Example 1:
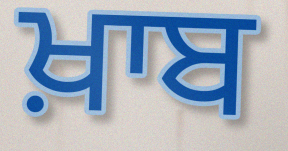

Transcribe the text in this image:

ਖ਼ਾਬ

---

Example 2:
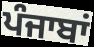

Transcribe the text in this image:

ਪੰਜਾਬਾਂ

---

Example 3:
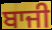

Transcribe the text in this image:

ਬਾਜੀ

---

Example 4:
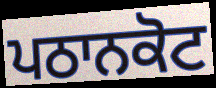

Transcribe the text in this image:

ਪਠਾਨਕੋਟ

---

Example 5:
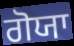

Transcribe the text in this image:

ਗੋਯਾ